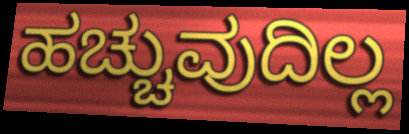
ಹಚ್ಚುವುದಿಲ್ಲ